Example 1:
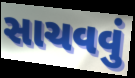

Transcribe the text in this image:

સાચવવું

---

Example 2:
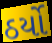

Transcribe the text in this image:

ઠર્યો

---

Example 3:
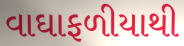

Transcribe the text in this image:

વાઘાફળીયાથી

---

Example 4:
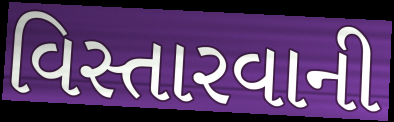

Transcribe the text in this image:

વિસ્તારવાની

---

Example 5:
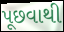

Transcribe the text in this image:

પૂછવાથી